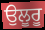
ਉਲੂਰੂ